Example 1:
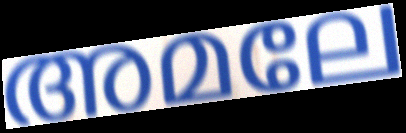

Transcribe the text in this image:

അമലേ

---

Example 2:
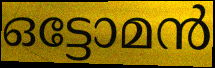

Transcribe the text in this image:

ഒട്ടോമൻ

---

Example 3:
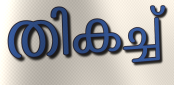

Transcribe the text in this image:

തികച്ച്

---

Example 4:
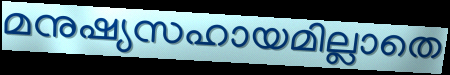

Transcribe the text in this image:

മനുഷ്യസഹായമില്ലാതെ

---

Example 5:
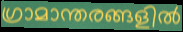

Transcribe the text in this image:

ഗ്രാമാന്തരങ്ങളിൽ